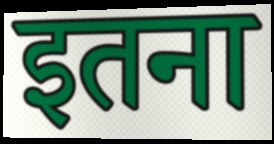
इतना